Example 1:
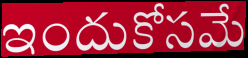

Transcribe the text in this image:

ఇందుకోసమే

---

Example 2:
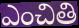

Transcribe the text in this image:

ఎంచితి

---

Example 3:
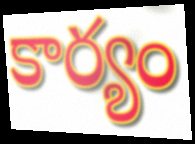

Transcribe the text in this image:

కార్యం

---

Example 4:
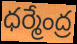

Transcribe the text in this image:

ధర్మేంద్ర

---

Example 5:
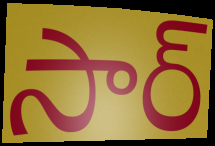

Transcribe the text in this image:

సార్